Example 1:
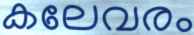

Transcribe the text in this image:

കലേവരം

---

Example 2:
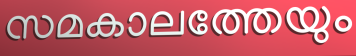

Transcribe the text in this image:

സമകാലത്തേയും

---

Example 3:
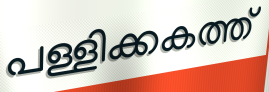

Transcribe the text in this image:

പള്ളിക്കകത്ത്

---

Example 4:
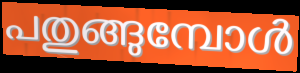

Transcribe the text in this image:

പതുങ്ങുമ്പോൾ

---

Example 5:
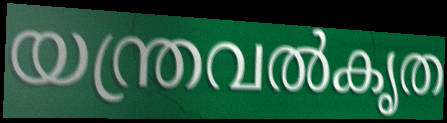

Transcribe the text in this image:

യന്ത്രവൽകൃത